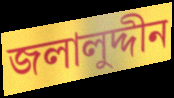
জলালুদ্দীন